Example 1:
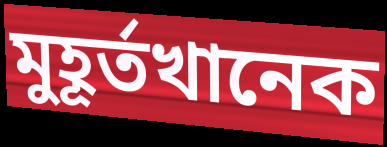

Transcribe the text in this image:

মুহূর্তখানেক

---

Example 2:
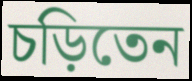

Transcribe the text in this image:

চড়িতেন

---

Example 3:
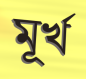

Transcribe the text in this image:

মূর্খ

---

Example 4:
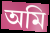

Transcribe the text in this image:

অমি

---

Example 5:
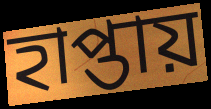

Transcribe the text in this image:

হাপ্তায়